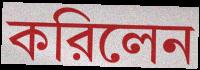
করিলেন